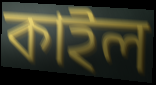
কাইল